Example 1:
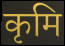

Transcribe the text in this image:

कृमि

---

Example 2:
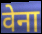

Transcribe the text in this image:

वेना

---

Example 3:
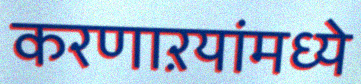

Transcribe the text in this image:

करणाऱयांमध्ये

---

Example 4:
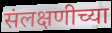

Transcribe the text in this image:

संलक्षणीच्या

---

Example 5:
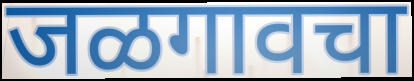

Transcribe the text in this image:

जळगावचा